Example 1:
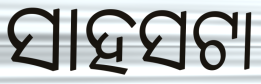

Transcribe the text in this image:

ସାହସଟା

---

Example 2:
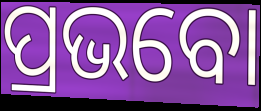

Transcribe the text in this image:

ପ୍ରଭବୋ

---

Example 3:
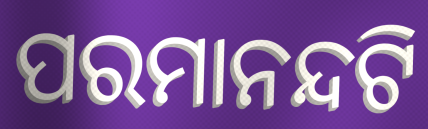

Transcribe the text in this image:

ପରମାନନ୍ଦଟି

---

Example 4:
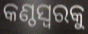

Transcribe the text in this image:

କଣ୍ଠସ୍ୱରକୁ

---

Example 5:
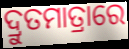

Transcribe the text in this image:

ଦ୍ରୁତମାତ୍ରାରେ